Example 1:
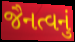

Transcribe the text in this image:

જૈનત્વનું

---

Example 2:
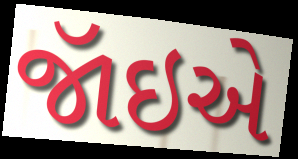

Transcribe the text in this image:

જૉઇએ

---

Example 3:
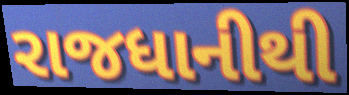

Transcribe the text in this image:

રાજધાનીથી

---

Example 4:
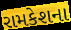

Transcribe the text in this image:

રામકેશના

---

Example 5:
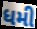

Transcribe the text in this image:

ધમી